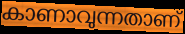
കാണാവുന്നതാണ്